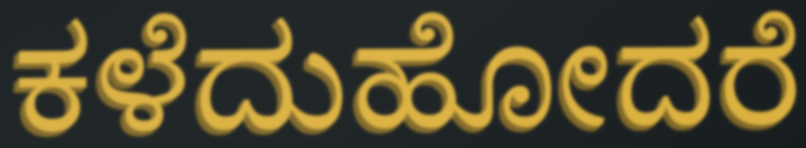
ಕಳೆದುಹೋದರೆ